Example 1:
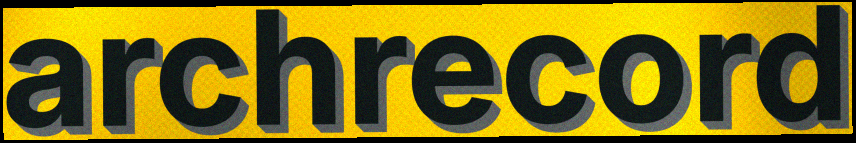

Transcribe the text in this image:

archrecord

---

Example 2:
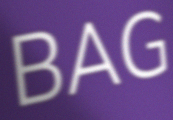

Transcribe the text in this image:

BAG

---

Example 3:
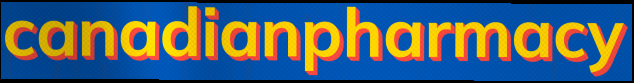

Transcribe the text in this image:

canadianpharmacy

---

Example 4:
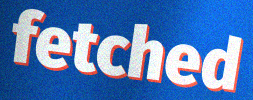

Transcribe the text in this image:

fetched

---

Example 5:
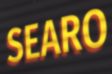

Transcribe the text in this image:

SEARO